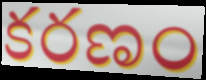
కరణం